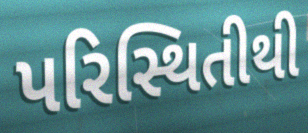
પરિસ્થિતીથી